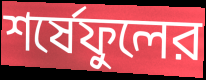
শর্ষেফুলের